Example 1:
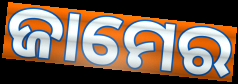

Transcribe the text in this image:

ଜାମେର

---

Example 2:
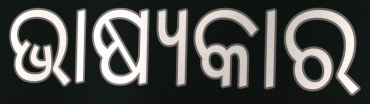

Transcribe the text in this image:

ଭାଷ୍ୟକାର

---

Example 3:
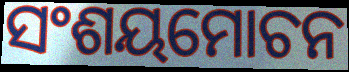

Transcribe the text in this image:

ସଂଶୟମୋଚନ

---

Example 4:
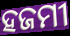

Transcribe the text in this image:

ହଜମୀ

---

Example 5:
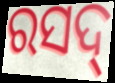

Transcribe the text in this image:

ରସଦ୍